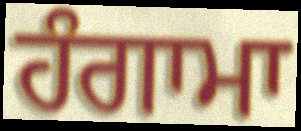
ਹੰਗਾਮਾ